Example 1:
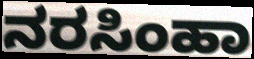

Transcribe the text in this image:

ನರಸಿಂಹಾ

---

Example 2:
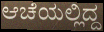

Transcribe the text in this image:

ಆಚೆಯಲ್ಲಿದ್ದ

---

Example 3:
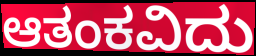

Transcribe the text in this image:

ಆತಂಕವಿದು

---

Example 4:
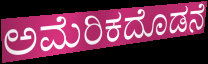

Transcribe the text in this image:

ಅಮೆರಿಕದೊಡನೆ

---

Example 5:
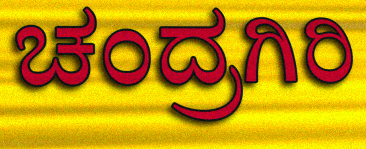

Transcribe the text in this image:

ಚಂದ್ರಗಿರಿ